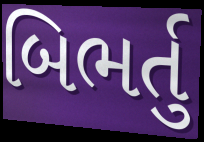
બિભર્તુ